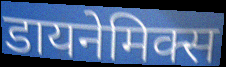
डायनेमिक्स